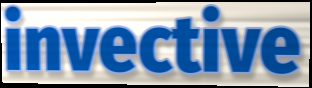
invective